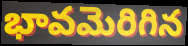
భావమెరిగిన